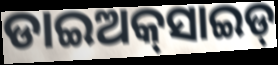
ଡାଇଅକ୍‌ସାଇଡ୍